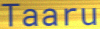
Taaru